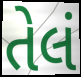
તેલં